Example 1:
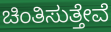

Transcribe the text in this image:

ಚಿಂತಿಸುತ್ತೇವೆ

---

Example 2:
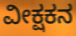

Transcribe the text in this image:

ವೀಕ್ಷಕನ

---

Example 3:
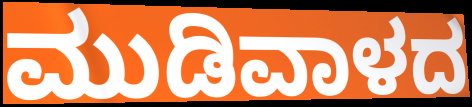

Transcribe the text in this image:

ಮುಡಿವಾಳದ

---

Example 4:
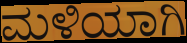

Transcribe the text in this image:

ಮಳಿಯಾಗಿ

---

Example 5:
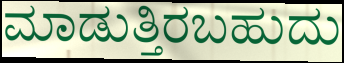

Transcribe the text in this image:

ಮಾಡುತ್ತಿರಬಹುದು